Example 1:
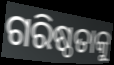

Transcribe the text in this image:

ଗରିଷ୍ଠତାକୁ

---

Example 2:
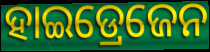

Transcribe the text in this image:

ହାଇଡ୍ରେଜେନ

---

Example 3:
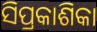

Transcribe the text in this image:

ସିପ୍ରକାଶିକା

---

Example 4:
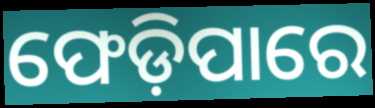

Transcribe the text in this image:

ଫେଡ଼ିପାରେ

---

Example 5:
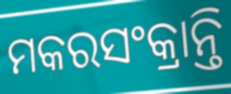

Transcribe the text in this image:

ମକରସଂକ୍ରାନ୍ତି